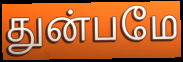
துன்பமே